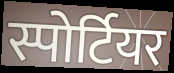
स्पोर्टियर